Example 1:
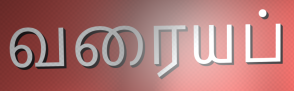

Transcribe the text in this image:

வரையப்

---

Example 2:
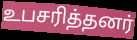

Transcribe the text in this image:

உபசரித்தனர்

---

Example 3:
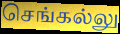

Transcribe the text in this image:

செங்கல்லு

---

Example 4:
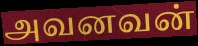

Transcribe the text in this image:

அவனவன்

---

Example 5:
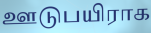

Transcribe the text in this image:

ஊடுபயிராக